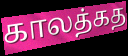
காலத்கத